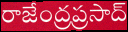
రాజేంద్రప్రసాద్